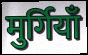
मुर्गियाँ